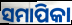
ସମାପିକା